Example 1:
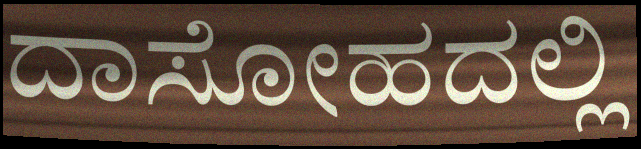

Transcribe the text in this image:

ದಾಸೋಹದಲ್ಲಿ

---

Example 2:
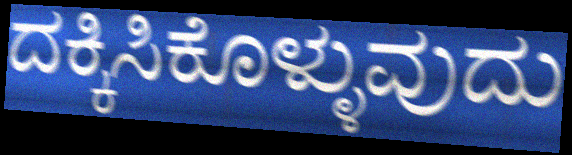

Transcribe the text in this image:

ದಕ್ಕಿಸಿಕೊಳ್ಳುವುದು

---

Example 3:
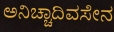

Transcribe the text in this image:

ಅನಿಚ್ಚಾದಿವಸೇನ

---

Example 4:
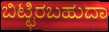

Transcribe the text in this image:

ಬಿಟ್ಟಿರಬಹುದಾ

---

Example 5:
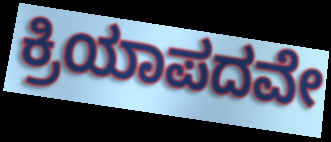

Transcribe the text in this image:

ಕ್ರಿಯಾಪದವೇ